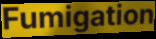
Fumigation